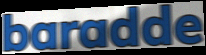
baradde